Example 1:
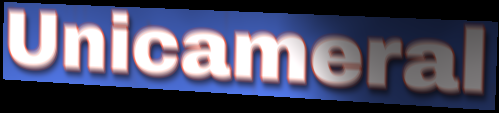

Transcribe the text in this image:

Unicameral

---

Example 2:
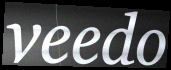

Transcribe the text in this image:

veedo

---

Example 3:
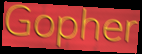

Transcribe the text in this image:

Gopher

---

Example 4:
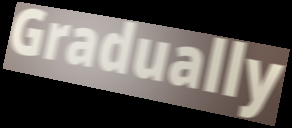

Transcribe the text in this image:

Gradually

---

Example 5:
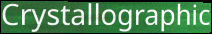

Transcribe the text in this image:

Crystallographic